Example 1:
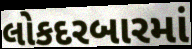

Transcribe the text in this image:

લોકદરબારમાં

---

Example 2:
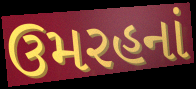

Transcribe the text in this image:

ઉમરહનાં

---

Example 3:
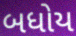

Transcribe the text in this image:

બધોય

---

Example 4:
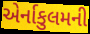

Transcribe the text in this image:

એર્નાકુલમની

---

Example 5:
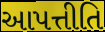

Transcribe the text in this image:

આપત્તીતિ